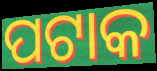
ପଟାକ